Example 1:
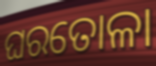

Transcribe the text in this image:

ଘରତୋଳା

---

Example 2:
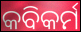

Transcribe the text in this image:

କବିକର୍ମ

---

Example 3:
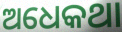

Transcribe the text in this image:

ଅଧେକଥା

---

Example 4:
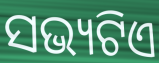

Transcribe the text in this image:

ସଭ୍ୟଟିଏ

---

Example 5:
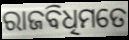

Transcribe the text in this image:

ରାଜବିଧିମତେ